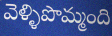
వెళ్ళిపొమ్మంది